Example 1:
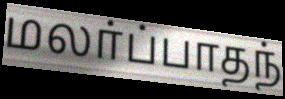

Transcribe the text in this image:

மலர்ப்பாதந்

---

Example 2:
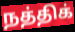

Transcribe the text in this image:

நத்திக்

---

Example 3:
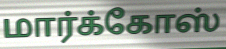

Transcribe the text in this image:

மார்க்கோஸ்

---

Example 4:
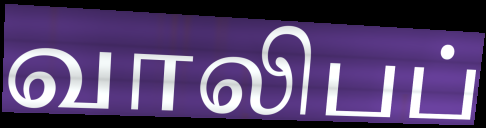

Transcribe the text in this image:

வாலிபப்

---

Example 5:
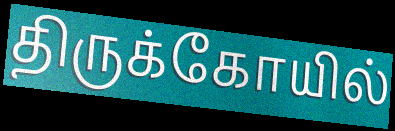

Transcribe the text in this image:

திருக்கோயில்